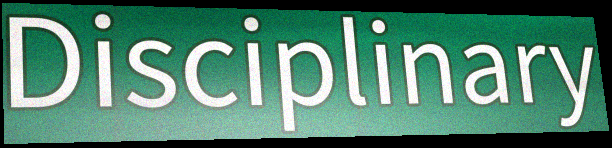
Disciplinary